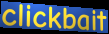
clickbait